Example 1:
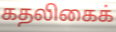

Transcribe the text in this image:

கதலிகைக்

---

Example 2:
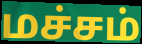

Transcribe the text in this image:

மச்சம்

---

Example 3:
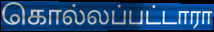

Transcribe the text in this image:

கொல்லப்பட்டாரா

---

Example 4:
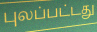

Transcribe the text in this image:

புலப்பட்டது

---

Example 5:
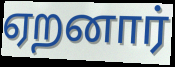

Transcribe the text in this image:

ஏறனார்